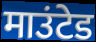
माउंटेड